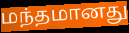
மந்தமானது